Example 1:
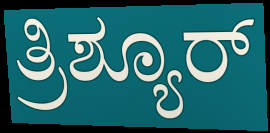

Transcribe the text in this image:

ತ್ರಿಶ್ಯೂರ್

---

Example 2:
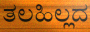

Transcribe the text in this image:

ತಲಹಿಲ್ಲದ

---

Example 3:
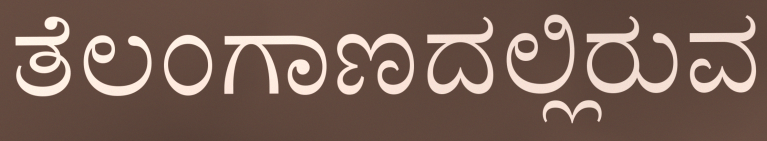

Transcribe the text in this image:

ತೆಲಂಗಾಣದಲ್ಲಿರುವ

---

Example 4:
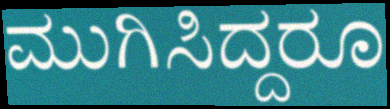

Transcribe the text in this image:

ಮುಗಿಸಿದ್ದರೂ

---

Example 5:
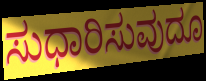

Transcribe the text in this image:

ಸುಧಾರಿಸುವುದೂ